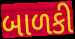
બાળકી